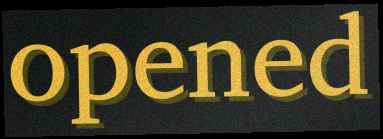
opened